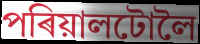
পৰিয়ালটোলৈ